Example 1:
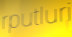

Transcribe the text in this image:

rputluri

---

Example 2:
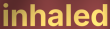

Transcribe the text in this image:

inhaled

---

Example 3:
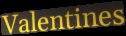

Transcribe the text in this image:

Valentines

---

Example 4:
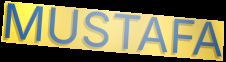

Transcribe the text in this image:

MUSTAFA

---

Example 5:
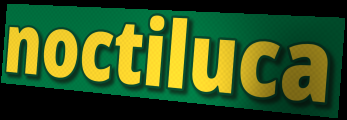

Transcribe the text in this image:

noctiluca